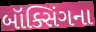
બૉક્સિંગના